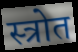
स्त्रोत